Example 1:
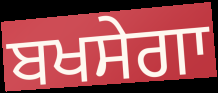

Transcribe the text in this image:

ਬਖਸੇਗਾ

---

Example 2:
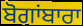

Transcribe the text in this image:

ਬੋਗਾਂਬਾਰਾ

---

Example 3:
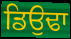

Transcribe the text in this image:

ਡਿਉਢਾ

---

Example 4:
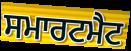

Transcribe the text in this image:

ਸਮਾਰਟਮੈਟ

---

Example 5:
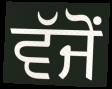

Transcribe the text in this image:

ਵੱਜੋਂ